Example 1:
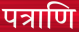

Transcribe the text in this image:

पत्राणि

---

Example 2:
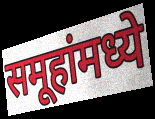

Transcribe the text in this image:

समूहांमध्ये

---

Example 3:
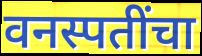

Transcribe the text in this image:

वनस्पतींचा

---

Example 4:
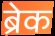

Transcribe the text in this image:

ब्रेक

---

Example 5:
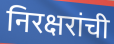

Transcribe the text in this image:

निरक्षरांची